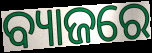
ବ୍ୟାଜରେ